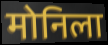
मोनिला